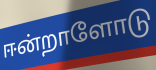
ஈன்றாளோடு